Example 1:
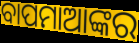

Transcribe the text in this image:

ବାପମାଆଙ୍କର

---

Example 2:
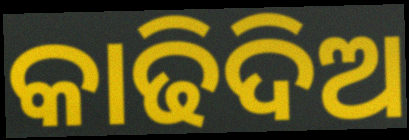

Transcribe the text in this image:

କାଢିଦିଅ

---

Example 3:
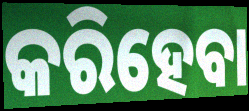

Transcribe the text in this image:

କରିହେବା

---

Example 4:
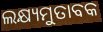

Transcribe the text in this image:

ଲକ୍ଷ୍ୟମୁତାବକ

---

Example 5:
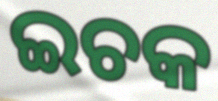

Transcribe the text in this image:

ଇଚକ